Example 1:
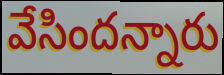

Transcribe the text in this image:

వేసిందన్నారు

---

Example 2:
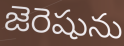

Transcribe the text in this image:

జెరెషును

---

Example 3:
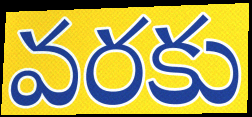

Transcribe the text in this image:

వరకు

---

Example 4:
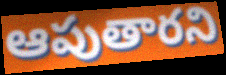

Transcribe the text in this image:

ఆపుతారని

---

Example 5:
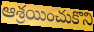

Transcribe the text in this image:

ఆశ్రయించుకొని